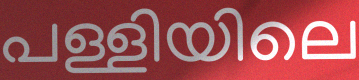
പള്ളിയിലെ